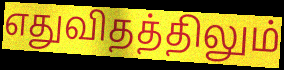
எதுவிதத்திலும்